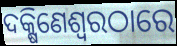
ଦକ୍ଷିଣେଶ୍ୱରଠାରେ